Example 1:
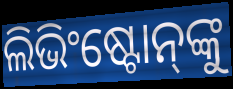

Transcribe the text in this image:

ଲିଭିଂଷ୍ଟୋନ୍‌ଙ୍କୁ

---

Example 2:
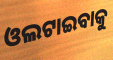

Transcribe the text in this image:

ଓଲଟାଇବାକୁ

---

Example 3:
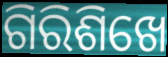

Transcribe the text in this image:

ଗିରିଶିଖେ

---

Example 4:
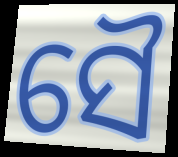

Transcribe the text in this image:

ସୈ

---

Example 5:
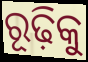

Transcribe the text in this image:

ରୂଢ଼ିକୁ